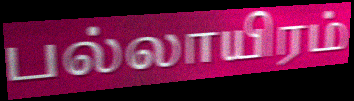
பல்லாயிரம்